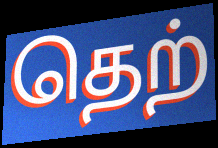
தெற்